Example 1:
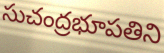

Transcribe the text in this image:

సుచంద్రభూపతిని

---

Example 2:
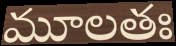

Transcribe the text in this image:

మూలతః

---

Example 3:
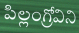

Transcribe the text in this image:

పిల్లంగ్రోవిని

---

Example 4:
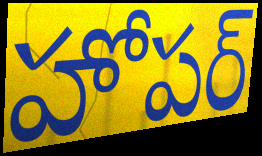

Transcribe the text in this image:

హోపర్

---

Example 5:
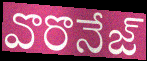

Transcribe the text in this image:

వొరొనేజ్